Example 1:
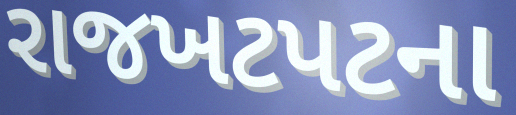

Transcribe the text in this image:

રાજખટપટના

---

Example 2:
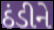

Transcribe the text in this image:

ઠંડીને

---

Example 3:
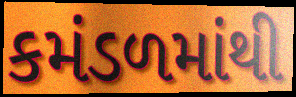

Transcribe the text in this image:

કમંડળમાંથી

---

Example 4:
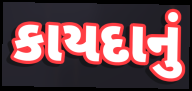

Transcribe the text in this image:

કાયદાનું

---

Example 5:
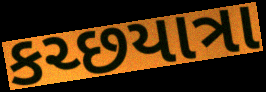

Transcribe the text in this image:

કચ્છયાત્રા